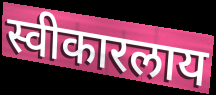
स्वीकारलाय